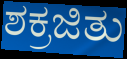
ಶಕ್ರಜಿತು